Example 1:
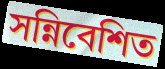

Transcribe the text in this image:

সন্নিবেশিত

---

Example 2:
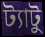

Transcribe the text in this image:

ট্যাটু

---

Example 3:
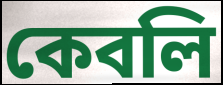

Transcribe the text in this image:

কেবলি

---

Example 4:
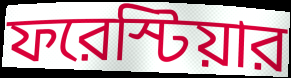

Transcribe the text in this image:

ফরেস্টিয়ার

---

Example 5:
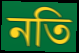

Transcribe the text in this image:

নতি